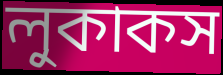
লুকাকস